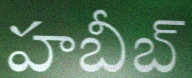
హబీబ్